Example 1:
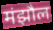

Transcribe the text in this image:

मंझौल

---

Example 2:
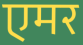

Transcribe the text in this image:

एमर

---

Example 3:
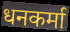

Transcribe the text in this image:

धनकर्मा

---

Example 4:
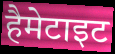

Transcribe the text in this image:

हैमेटाइट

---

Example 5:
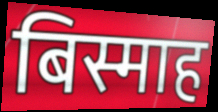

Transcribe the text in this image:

बिस्माह